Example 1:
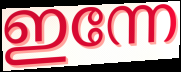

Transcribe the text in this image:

ഇന്നേ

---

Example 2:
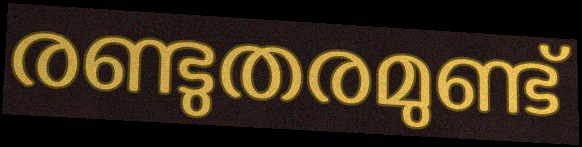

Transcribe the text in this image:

രണ്ടുതരമുണ്ട്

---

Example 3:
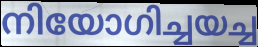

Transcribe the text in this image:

നിയോഗിച്ചയച്ച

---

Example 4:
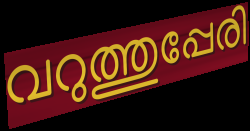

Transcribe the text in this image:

വറുത്തുപ്പേരി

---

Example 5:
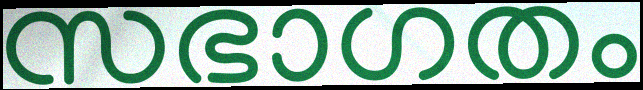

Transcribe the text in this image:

സഭാഗതം